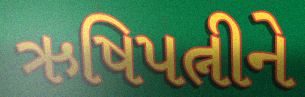
ઋષિપત્નીને